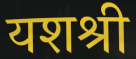
यशश्री